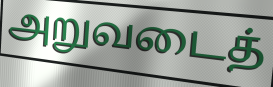
அறுவடைத்